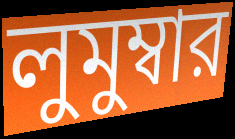
লুমুম্বার